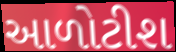
આળોટીશ